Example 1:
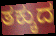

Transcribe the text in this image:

ತಕ್ಕುದ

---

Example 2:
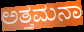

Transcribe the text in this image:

ಅತ್ತಮನಾ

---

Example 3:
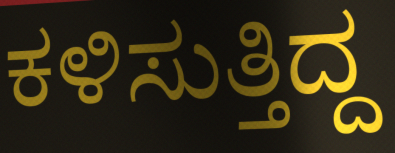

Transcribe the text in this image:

ಕಳಿಸುತ್ತಿದ್ದ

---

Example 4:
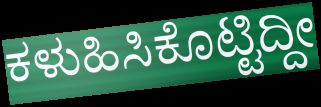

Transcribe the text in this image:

ಕಳುಹಿಸಿಕೊಟ್ಟಿದ್ದೀ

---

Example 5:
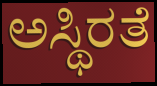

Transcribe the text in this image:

ಅಸ್ಥಿರತೆ